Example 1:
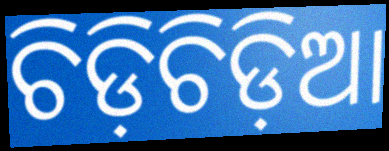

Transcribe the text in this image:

ଚିଡ଼ିଚିଡ଼ିଆ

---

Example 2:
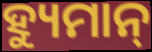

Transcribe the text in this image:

ହ୍ୟୁମାନ୍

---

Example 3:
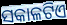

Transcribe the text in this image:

ସକାଳଟିଏ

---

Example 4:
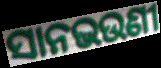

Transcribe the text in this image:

ସାନଭଉଣୀ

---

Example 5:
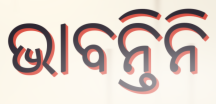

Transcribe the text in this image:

ଭାବନ୍ତିନି